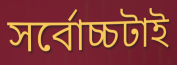
সর্বোচ্চটাই